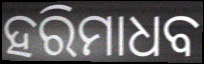
ହରିମାଧବ